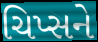
ચિપ્સને